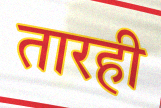
तारही